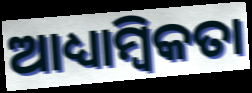
ଆଧ୍ୟାମ୍ବିକତା